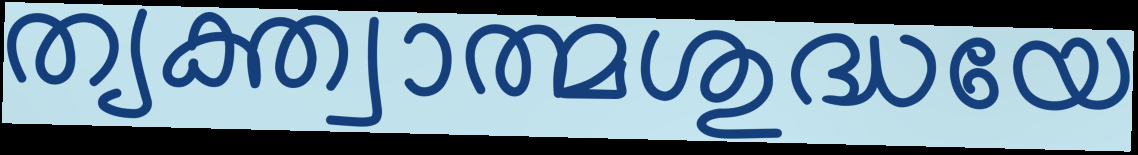
ത്യക്ത്വാത്മശുദ്ധയേ